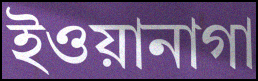
ইওয়ানাগা